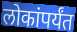
लोकांपर्यंत